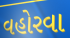
વહોરવા